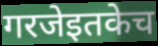
गरजेइतकेच